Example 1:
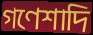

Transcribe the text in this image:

গণেশাদি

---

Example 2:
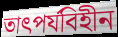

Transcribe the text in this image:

তাৎপর্যবিহীন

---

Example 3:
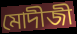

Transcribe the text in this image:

মোদীজী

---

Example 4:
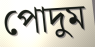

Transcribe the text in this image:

পোদুম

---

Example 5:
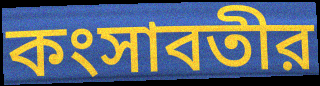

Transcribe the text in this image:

কংসাবতীর